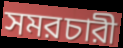
সমরচারী